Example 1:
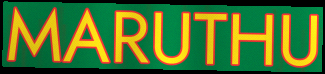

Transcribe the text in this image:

MARUTHU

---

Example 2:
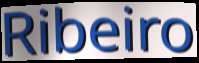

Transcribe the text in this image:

Ribeiro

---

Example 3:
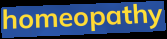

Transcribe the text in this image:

homeopathy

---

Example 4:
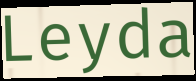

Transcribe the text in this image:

Leyda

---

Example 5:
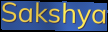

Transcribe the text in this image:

Sakshya